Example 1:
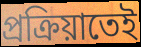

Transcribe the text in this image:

প্রক্রিয়াতেই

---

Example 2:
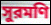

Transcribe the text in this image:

সুরমণি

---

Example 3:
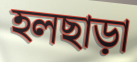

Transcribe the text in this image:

হলছাড়া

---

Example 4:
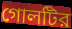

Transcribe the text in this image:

গোলটির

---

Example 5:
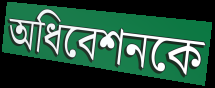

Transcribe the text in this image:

অধিবেশনকে